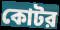
কোটর